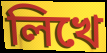
লিখে